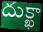
దుక్ఖా